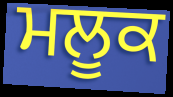
ਮਲੂਕ